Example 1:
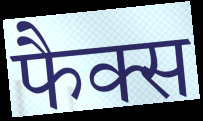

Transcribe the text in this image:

फैक्स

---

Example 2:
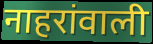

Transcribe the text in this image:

नाहरांवाली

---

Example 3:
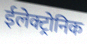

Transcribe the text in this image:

ईलेक्ट्रोनिक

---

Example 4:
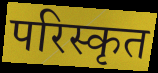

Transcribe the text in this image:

परिस्कृत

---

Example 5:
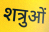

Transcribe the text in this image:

शत्रुओं